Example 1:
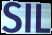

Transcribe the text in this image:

SIL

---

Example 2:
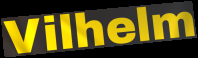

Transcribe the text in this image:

Vilhelm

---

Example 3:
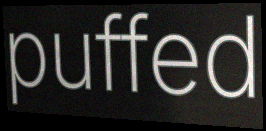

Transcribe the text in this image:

puffed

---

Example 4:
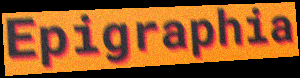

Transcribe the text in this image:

Epigraphia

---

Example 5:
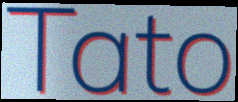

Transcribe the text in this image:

Tato